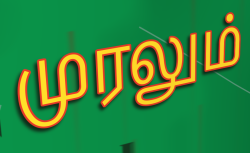
முரலும்